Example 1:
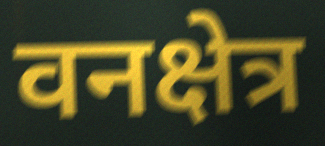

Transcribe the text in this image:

वनक्षेत्र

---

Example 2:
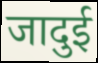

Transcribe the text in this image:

जादुई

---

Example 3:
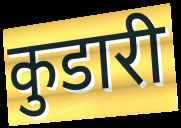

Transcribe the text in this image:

कुडारी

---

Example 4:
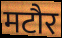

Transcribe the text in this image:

मटौर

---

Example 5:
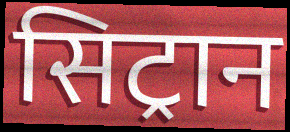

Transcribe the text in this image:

सिट्रान